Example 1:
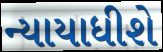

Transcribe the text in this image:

ન્યાયાધીશે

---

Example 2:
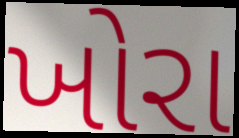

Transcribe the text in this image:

ખોરા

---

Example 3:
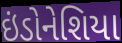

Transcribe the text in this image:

ઇંડોનેશિયા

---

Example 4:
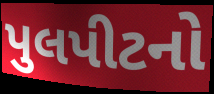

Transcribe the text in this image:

પુલપીટનો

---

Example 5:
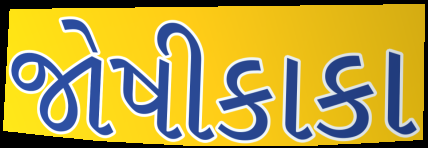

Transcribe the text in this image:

જોષીકાકા